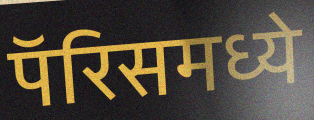
पॅरिसमध्ये